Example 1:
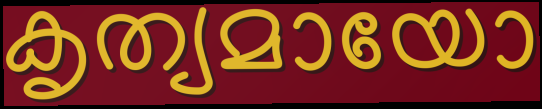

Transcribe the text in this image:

കൃത്യമായോ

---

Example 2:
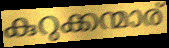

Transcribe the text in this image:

കുറുക്കന്മാര്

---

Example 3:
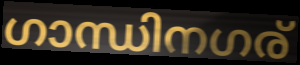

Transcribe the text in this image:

ഗാന്ധിനഗര്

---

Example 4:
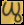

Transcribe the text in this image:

ധു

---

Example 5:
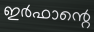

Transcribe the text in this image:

ഇർഫാന്റെ